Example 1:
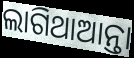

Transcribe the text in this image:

ଲାଗିଥାଆନ୍ତା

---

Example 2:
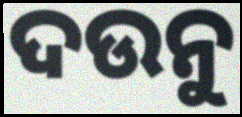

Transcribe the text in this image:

ଦଉନୁ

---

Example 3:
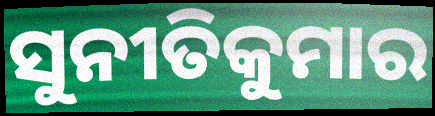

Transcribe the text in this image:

ସୁନୀତିକୁମାର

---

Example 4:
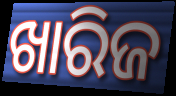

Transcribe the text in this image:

ଖାରିଜ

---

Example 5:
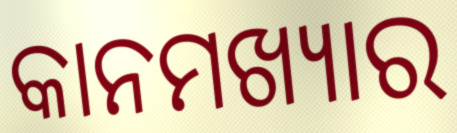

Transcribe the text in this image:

କାନମଖ୍ୟାର